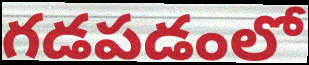
గడపడంలో